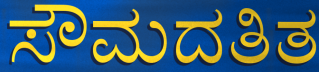
ಸೌಮದತಿತ